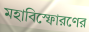
মহাবিস্ফোরণের